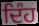
ਦਿੰਹ